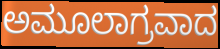
ಅಮೂಲಾಗ್ರವಾದ